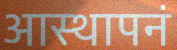
आस्थापनं